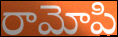
రామోపి